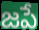
జపే